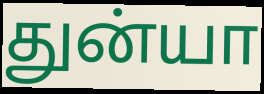
துன்யா